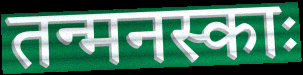
तन्मनस्काः